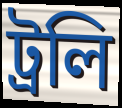
ট্রলি